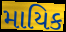
માયિક